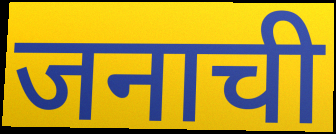
जनाची